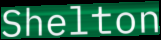
Shelton